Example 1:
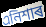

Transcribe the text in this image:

এনিশাৰ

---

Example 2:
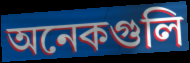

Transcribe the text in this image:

অনেকগুলি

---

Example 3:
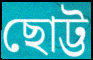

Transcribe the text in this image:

ছোট্ট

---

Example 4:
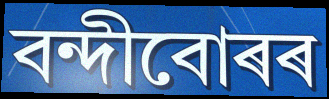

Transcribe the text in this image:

বন্দীবোৰৰ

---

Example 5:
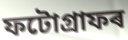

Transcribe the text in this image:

ফটোগ্ৰাফৰ